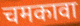
चमकावा